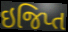
ઇજિપ્ત